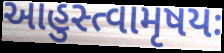
આહુસ્ત્વામૃષયઃ